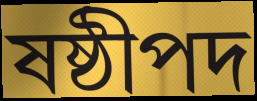
ষষ্ঠীপদ